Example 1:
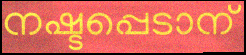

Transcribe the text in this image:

നഷ്ടപ്പെടാന്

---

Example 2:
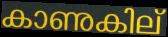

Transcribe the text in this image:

കാണുകില്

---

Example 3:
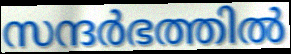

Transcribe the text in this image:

സന്ദർഭത്തിൽ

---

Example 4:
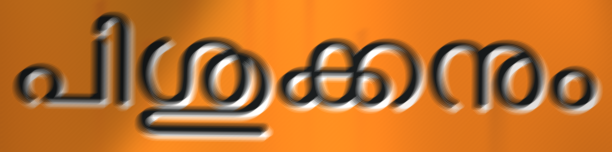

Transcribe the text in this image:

പിശുക്കനും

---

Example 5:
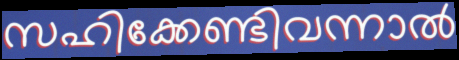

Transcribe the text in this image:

സഹിക്കേണ്ടിവന്നാൽ